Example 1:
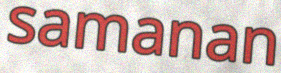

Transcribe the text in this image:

samanan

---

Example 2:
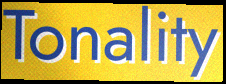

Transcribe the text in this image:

Tonality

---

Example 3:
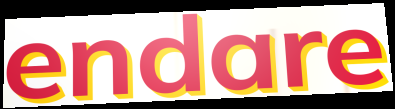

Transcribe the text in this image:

endare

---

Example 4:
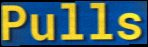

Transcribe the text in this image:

Pulls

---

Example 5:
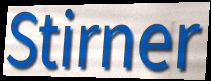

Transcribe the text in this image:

Stirner